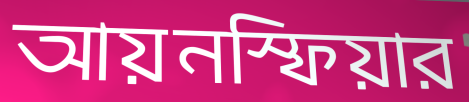
আয়নস্ফিয়ার